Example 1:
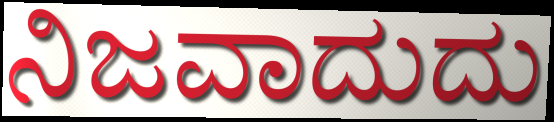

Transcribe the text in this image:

ನಿಜವಾದುದು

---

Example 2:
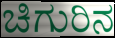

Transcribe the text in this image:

ಚಿಗುರಿನ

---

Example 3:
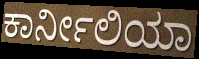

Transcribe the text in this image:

ಕಾರ್ನೀಲಿಯಾ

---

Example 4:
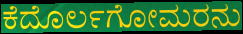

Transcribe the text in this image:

ಕೆದೊರ್ಲಗೋಮರನು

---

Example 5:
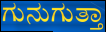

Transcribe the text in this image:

ಗುನುಗುತ್ತಾ